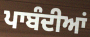
ਪਾਬੰਦੀਆਂ